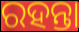
ରହନ୍ତା